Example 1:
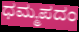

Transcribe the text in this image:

ಧಮ್ಮಪದಂ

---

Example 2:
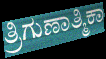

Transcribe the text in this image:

ತ್ರಿಗುಣಾತ್ಮಿಕಾ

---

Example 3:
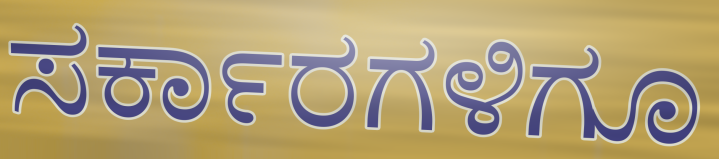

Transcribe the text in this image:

ಸರ್ಕಾರಗಳಿಗೂ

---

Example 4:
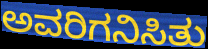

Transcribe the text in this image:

ಅವರಿಗನಿಸಿತು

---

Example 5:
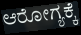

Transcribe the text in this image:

ಆರೋಗ್ಯಕ್ಕೆ